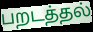
பறடத்தல்